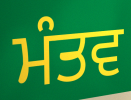
ਮੰਤਵ